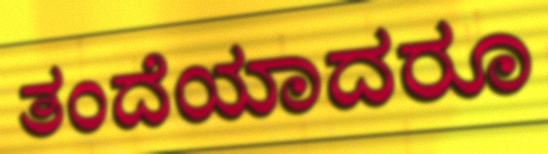
ತಂದೆಯಾದರೂ